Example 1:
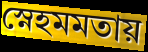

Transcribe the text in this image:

স্নেহমমতায়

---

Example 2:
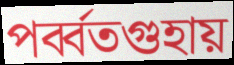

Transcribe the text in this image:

পর্ব্বতগুহায়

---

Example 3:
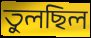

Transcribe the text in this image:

তুলছিল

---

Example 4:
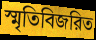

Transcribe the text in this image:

স্মৃতিবিজরিত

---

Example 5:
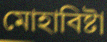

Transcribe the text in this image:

মোহাবিষ্টা